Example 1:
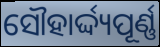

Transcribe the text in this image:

ସୌହାର୍ଦ୍ଦ୍ୟପୂର୍ଣ୍ଣ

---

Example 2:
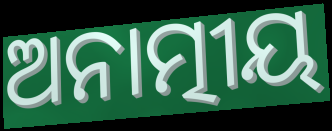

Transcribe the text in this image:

ଅନାତ୍ମୀୟ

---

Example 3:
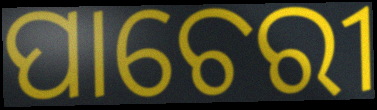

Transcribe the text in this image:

ପାଚେରୀ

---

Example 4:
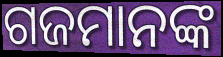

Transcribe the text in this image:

ଗଜମାନଙ୍କ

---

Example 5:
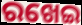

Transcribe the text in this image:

ରଖେଇ